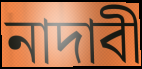
নাদাবী